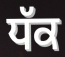
ਧੱਕ